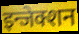
इन्जेक्शन